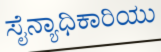
ಸೈನ್ಯಾಧಿಕಾರಿಯು